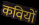
कवियों